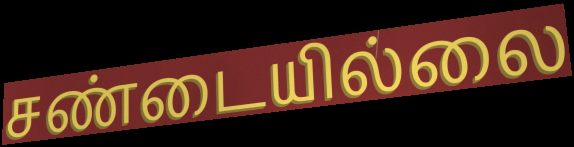
சண்டையில்லை